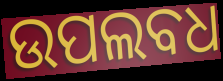
ଉପଲବଧ